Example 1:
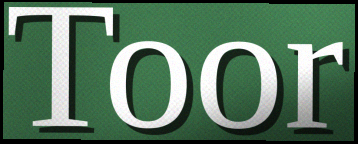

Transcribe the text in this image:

Toor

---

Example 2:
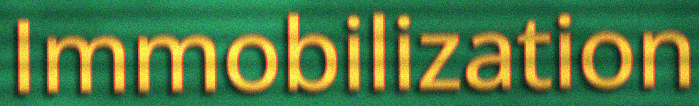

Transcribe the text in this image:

Immobilization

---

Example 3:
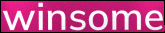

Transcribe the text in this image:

winsome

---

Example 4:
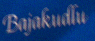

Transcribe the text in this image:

Bajakudlu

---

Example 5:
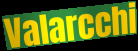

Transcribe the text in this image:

Valarcchi